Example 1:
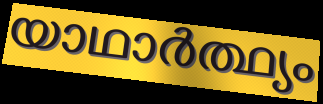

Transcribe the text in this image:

യാഥാർത്ഥ്യം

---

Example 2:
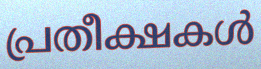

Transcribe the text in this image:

പ്രതീക്ഷകൾ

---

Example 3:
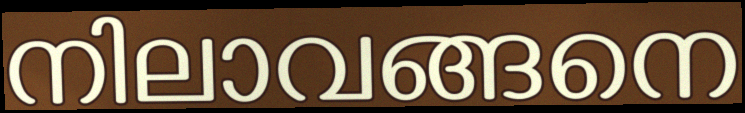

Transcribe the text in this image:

നിലാവങ്ങനെ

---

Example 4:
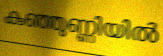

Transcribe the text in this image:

കുഞ്ഞുണ്ണിയിൽ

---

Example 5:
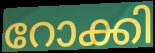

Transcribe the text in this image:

റോക്കി